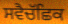
ਸਵੈਚੱਛਿਕ